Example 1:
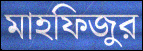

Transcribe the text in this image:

মাহফিজুর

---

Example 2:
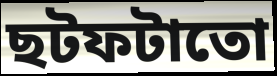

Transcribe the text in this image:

ছটফটাতো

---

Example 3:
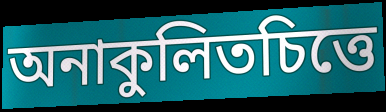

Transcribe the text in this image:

অনাকুলিতচিত্তে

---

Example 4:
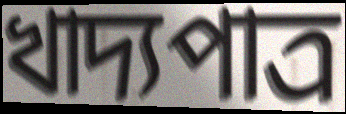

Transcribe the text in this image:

খাদ্যপাত্র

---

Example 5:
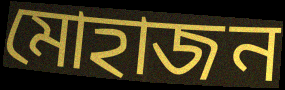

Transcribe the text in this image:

মোহাজন